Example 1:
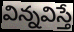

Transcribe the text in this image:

విన్నవిస్తే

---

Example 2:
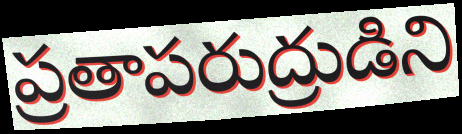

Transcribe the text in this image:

ప్రతాపరుద్రుడిని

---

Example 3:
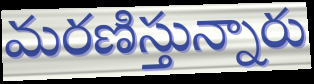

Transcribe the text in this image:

మరణిస్తున్నారు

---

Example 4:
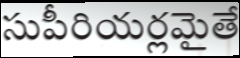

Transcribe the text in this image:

సుపీరియర్లమైతే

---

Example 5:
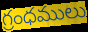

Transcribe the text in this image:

గ్రంధములు